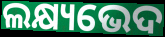
ଲକ୍ଷ୍ୟଭେଦ